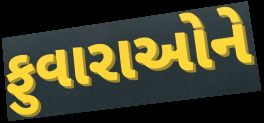
ફુવારાઓને